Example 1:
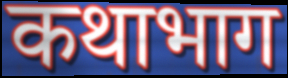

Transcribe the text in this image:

कथाभाग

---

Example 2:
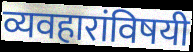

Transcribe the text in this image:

व्यवहारांविषयी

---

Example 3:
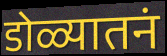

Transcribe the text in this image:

डोळ्यातनं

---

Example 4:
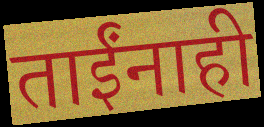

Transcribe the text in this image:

ताईंनाही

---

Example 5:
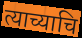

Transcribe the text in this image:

त्याच्याचि